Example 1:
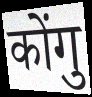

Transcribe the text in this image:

कोंगु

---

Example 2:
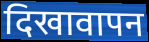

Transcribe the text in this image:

दिखावापन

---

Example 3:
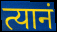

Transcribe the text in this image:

त्यानं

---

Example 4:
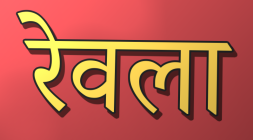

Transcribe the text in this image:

रेवला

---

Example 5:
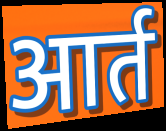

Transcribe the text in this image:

आर्त